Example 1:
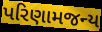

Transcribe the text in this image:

પરિણામજન્ય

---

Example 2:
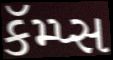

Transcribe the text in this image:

કૅમ્પ્સ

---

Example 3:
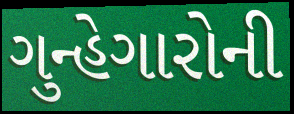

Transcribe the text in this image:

ગુન્હેગારોની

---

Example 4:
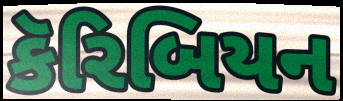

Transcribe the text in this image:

કૅરિબિયન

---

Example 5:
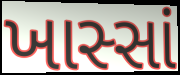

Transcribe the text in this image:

ખાસ્સાં